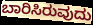
ಬಾರಿಸಿರುವುದು